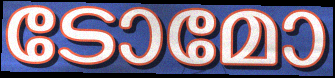
ടോമോ